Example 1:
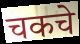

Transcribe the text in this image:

चकचे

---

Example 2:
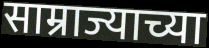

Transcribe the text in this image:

साम्राज्याच्या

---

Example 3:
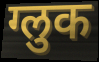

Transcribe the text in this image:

ग्लुक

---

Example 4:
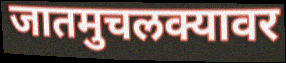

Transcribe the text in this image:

जातमुचलक्यावर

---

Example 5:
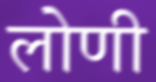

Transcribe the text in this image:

लोणी